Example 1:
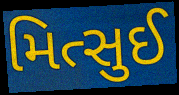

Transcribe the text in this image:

મિત્સુઈ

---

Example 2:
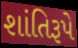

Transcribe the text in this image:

શાંતિરૂપે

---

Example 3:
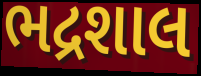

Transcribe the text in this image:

ભદ્રશાલ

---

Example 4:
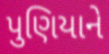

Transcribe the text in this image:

પુણિયાને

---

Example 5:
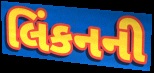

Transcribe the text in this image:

લિંકનની